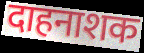
दाहनाशक